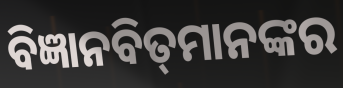
ବିଜ୍ଞାନବିତ୍‌ମାନଙ୍କର